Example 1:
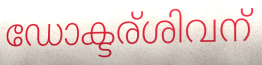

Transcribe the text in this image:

ഡോക്ടര്ശിവന്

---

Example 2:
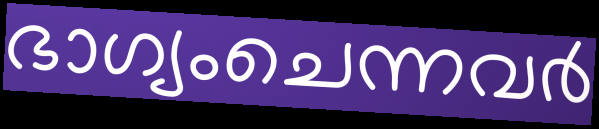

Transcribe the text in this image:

ഭാഗ്യംചെന്നവർ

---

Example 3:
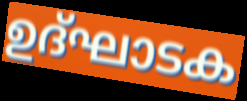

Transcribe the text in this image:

ഉദ്ഘാടക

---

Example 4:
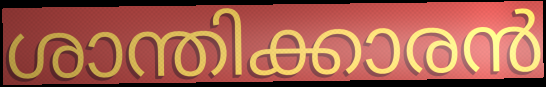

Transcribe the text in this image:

ശാന്തിക്കാരൻ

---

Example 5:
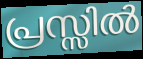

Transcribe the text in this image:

പ്രസ്സിൽ